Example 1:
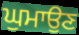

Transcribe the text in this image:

ਘੁਮਾਉਣ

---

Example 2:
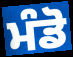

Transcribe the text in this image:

ਮੰਡੋ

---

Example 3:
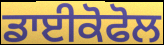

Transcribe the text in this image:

ਡਾਈਕੋਫੋਲ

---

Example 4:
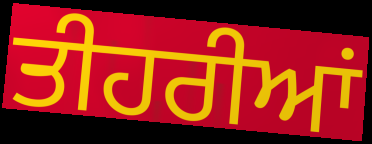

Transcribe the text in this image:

ਤੀਹਰੀਆਂ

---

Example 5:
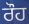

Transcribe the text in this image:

ਰੌਹ